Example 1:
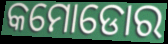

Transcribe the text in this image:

କମୋଡୋର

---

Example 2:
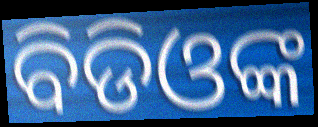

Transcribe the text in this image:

ବିଡିଓଙ୍କ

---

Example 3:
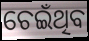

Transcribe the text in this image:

ଚେଇଁଥିବ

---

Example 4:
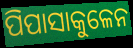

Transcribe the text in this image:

ପିପାସାକୁଳେନ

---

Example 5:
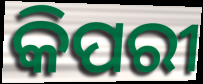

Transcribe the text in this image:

କିପରୀ